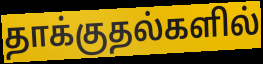
தாக்குதல்களில்